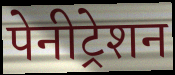
पेनीट्रेशन